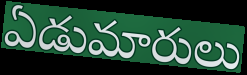
ఏడుమారులు